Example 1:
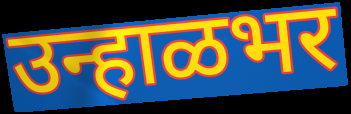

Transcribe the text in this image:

उन्हाळभर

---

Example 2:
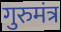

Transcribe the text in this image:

गुरुमंत्र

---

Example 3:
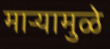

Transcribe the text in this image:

माऱ्यामुळे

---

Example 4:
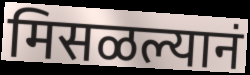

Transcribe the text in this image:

मिसळल्यानं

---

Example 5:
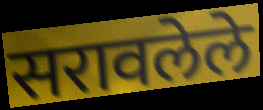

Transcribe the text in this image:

सरावलेले